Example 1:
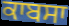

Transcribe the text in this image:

ਕਾਬਸਾ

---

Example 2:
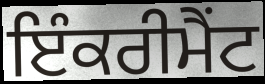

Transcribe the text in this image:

ਇੰਕਰੀਮੈਂਟ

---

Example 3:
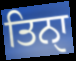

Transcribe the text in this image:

ਤਿਨੑਾ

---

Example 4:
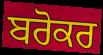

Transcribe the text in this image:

ਬਰੋਕਰ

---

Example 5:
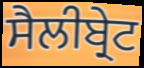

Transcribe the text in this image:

ਸੈਲੀਬ੍ਰੇਟ